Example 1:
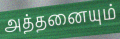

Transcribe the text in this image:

அத்தனையும்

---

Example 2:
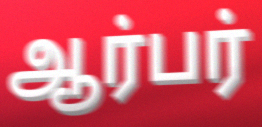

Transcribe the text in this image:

ஆர்பர்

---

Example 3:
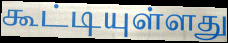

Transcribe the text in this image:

கூட்டியுள்ளது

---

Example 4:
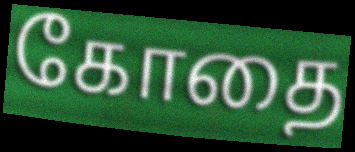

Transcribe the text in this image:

கோதை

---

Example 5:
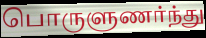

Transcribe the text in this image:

பொருளுணர்ந்து